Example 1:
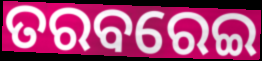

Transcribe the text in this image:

ତରବରେଇ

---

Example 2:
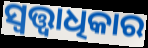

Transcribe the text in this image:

ସ୍ୱତ୍ତ୍ୱାଧିକାର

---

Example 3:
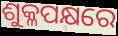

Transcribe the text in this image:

ଶୁକ୍ଳପକ୍ଷରେ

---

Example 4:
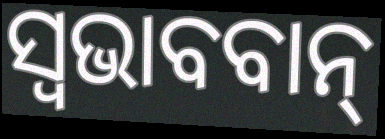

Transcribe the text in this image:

ସ୍ଵଭାବବାନ୍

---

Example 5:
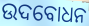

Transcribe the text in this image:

ଉଦବୋଧନ